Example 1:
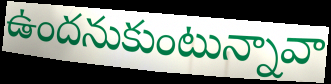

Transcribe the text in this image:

ఉందనుకుంటున్నావా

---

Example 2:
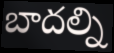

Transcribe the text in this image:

బాదల్ని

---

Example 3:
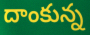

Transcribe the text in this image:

దాంకున్న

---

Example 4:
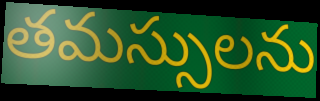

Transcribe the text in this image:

తమస్సులను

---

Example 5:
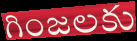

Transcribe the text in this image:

గింజలకు